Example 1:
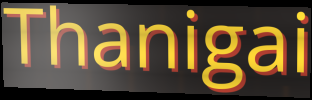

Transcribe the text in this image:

Thanigai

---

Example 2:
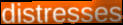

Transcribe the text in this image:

distresses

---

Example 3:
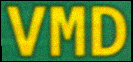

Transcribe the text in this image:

VMD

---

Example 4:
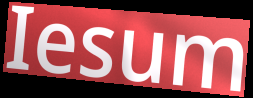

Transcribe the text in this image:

Iesum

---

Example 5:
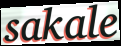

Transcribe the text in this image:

sakale